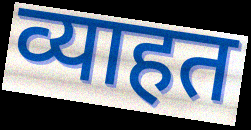
व्याहत